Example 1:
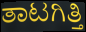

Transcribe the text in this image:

ತಾಟಗಿತ್ತಿ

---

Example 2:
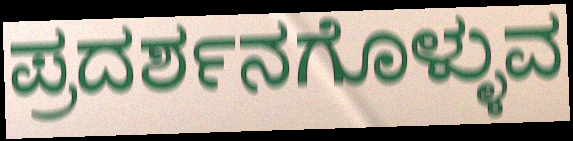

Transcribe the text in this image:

ಪ್ರದರ್ಶನಗೊಳ್ಳುವ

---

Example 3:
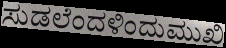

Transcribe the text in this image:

ಸುಡಲೆಂದಳಿಂದುಮುಖಿ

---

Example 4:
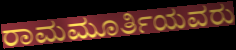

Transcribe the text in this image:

ರಾಮಮೂರ್ತಿಯವರು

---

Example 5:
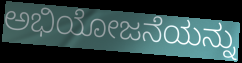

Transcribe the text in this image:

ಅಭಿಯೋಜನೆಯನ್ನು